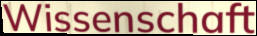
Wissenschaft